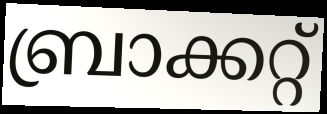
ബ്രാക്കറ്റ്